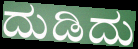
ದುಡಿದು